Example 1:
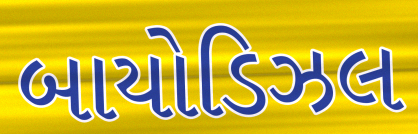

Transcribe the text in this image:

બાયોડિઝલ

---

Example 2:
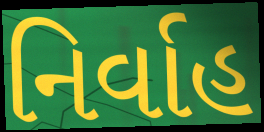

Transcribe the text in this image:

નિર્વાહ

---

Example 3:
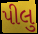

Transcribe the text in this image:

પીલુ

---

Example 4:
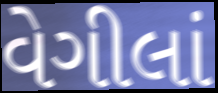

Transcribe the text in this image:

વેગીલાં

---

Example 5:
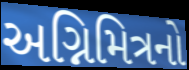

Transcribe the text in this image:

અગ્નિમિત્રનો